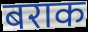
बराक